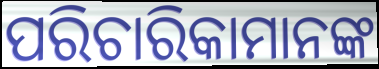
ପରିଚାରିକାମାନଙ୍କ